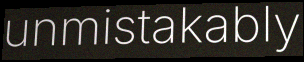
unmistakably